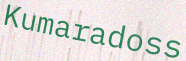
Kumaradoss